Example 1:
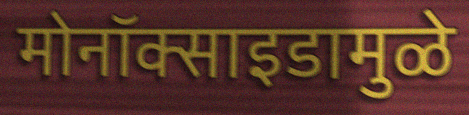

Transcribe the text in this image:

मोनॉक्साइडामुळे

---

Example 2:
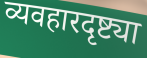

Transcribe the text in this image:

व्यवहारदृष्ट्या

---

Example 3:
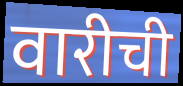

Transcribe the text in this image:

वारीची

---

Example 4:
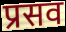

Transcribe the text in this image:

प्रसव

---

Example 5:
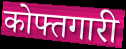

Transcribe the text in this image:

कोफ्तगारी